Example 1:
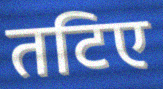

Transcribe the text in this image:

तटिए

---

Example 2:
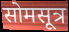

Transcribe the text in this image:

सोमसूत्र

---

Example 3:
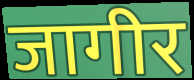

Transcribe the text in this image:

जागीर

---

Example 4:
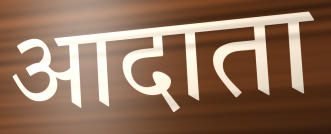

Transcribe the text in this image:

आदाता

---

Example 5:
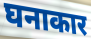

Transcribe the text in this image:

घनाकार